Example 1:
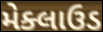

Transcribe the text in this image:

મેક્લાઉડ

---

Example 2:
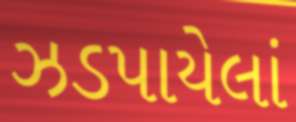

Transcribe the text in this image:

ઝડપાયેલાં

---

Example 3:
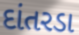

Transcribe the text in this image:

દાંતરડા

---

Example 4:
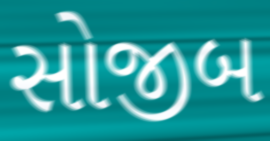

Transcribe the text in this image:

સોજીબ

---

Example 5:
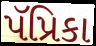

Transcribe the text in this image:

પૅપ્રિકા